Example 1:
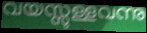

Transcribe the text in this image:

വയസ്സുള്ളവന്നു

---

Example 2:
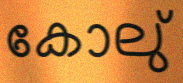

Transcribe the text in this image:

കോലു്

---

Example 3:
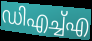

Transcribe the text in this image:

ഡിഎച്ച്എ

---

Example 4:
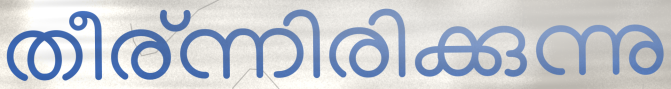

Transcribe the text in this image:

തീര്ന്നിരിക്കുന്നു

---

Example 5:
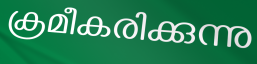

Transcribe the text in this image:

ക്രമീകരിക്കുന്നു